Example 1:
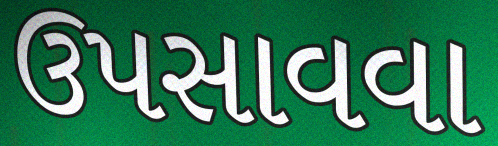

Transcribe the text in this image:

ઉપસાવવા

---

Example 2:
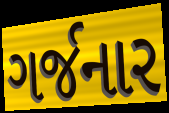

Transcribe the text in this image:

ગર્જનાર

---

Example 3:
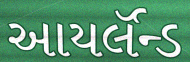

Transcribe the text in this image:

આયર્લૅન્ડ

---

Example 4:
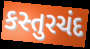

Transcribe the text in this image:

કસ્તુરચંદ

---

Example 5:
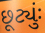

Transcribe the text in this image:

છૂટ્યુંઃ